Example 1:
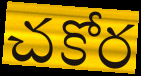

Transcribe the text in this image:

చకోర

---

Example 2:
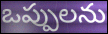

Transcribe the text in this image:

ఒప్పులను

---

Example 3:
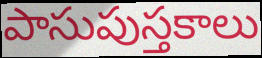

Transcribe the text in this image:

పాసుపుస్తకాలు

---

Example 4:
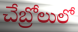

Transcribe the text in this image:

చేబ్రోలులో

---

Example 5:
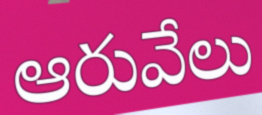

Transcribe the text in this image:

ఆరువేలు